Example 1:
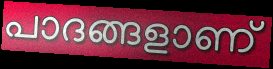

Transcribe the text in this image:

പാദങ്ങളാണ്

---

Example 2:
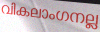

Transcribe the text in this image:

വികലാംഗനല്ല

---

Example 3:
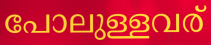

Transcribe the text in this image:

പോലുള്ളവര്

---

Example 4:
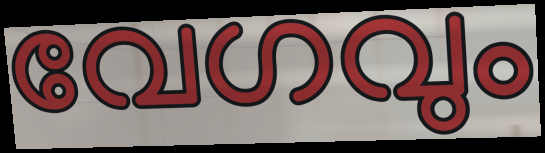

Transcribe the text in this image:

വേഗവും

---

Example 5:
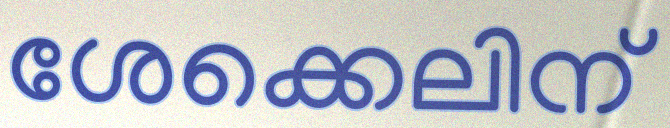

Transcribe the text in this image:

ശേക്കെലിന്